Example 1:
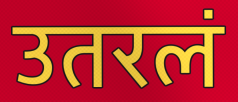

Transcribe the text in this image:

उतरलं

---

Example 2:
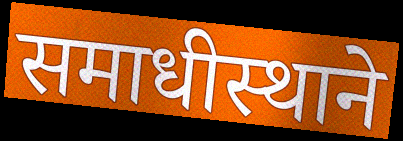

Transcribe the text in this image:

समाधीस्थाने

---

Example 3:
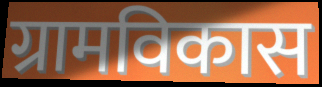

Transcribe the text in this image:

ग्रामविकास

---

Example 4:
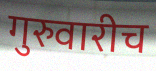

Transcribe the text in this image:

गुरुवारीच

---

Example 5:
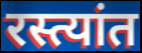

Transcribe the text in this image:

रस्त्यांत